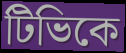
টিভিকে